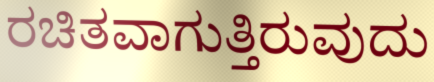
ರಚಿತವಾಗುತ್ತಿರುವುದು